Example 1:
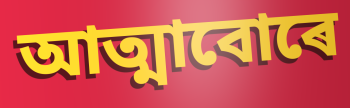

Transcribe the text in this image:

আত্মাবোৰে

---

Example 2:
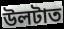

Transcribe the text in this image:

উলটাত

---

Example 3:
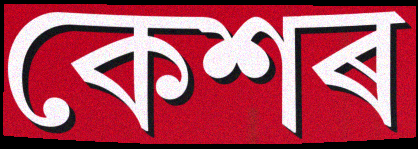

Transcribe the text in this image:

কেশৰ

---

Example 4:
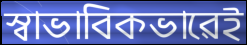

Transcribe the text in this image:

স্বাভাবিকভাৱেই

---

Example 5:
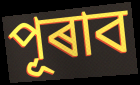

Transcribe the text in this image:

পূৰাব